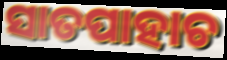
ସାତପାହାଚ